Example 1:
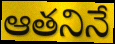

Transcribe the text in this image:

ఆతనినే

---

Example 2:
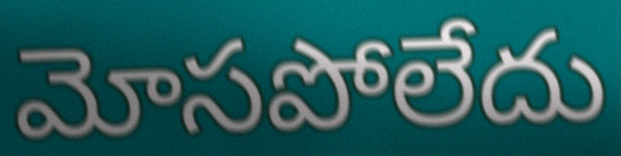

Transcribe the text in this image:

మోసపోలేదు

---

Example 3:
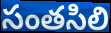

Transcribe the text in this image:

సంతసిలి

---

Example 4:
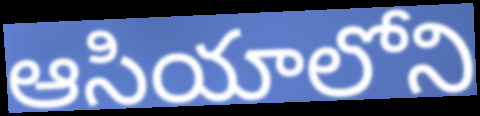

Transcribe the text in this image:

ఆసియాలోని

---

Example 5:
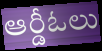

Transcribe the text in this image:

ఆర్డీఓలు